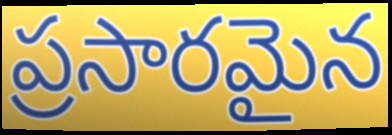
ప్రసారమైన